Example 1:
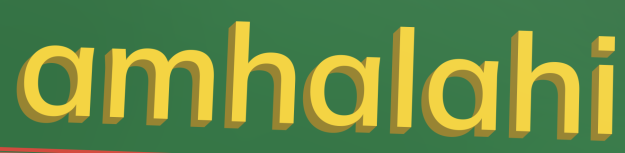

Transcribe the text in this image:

amhalahi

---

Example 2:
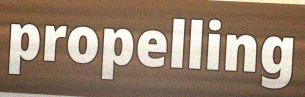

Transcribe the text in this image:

propelling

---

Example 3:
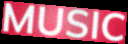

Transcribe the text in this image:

MUSIC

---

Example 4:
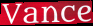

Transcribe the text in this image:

Vance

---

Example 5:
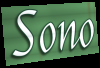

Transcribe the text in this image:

Sono